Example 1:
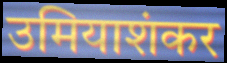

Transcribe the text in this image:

उमियाशंकर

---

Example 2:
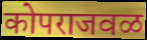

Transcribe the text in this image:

कोपराजवळ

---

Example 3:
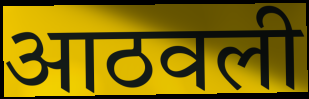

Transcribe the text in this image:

आठवली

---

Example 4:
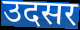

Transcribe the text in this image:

उदसर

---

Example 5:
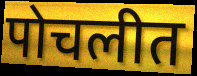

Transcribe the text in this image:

पोचलीत